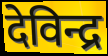
देविन्द्र